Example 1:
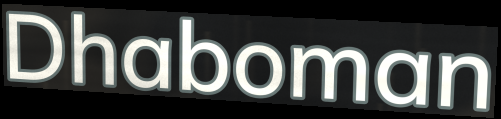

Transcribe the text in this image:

Dhaboman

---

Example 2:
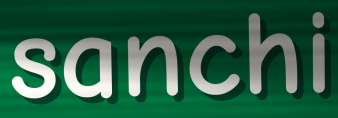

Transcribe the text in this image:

sanchi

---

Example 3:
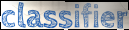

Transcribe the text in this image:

classifier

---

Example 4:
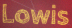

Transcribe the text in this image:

Lowis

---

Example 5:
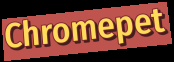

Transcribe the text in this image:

Chromepet